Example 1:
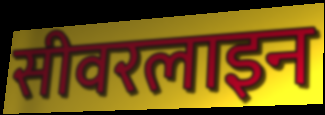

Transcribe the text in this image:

सीवरलाइन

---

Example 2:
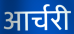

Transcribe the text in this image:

आर्चरी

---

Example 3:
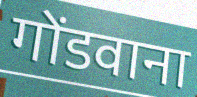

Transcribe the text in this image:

गोंडवाना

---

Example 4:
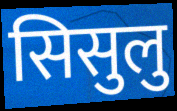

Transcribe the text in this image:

सिसुलु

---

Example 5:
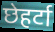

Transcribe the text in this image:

छेहर्टा